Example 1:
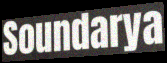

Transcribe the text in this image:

Soundarya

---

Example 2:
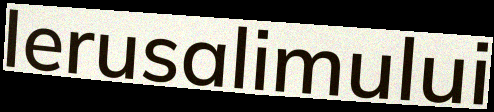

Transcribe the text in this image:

Ierusalimului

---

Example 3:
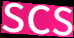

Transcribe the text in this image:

scs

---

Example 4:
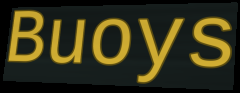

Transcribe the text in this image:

Buoys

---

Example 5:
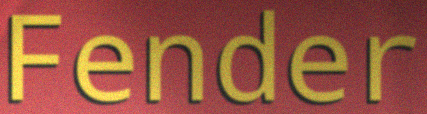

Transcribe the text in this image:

Fender